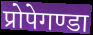
प्रोपेगण्डा